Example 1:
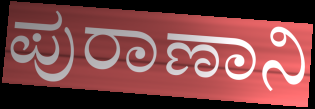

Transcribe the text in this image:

ಪುರಾಣಾನಿ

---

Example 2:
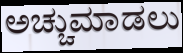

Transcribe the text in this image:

ಅಚ್ಚುಮಾಡಲು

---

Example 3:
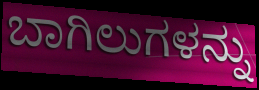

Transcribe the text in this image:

ಬಾಗಿಲುಗಳನ್ನು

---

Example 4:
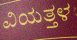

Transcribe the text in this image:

ವಿಯತ್ತಳ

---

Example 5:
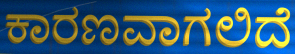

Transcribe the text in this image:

ಕಾರಣವಾಗಲಿದೆ